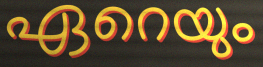
ഏറെയും